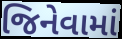
જિનેવામાં